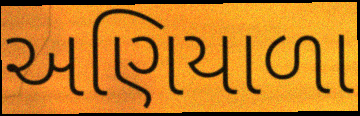
અણિયાળા